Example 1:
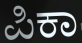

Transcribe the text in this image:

ಪಿಕಾ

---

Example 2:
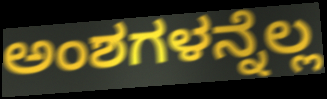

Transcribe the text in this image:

ಅಂಶಗಳನ್ನೆಲ್ಲ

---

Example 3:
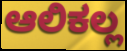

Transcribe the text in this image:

ಆಲಿಕಲ್ಲ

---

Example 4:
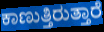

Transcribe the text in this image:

ಕಾಣುತ್ತಿರುತ್ತಾರೆ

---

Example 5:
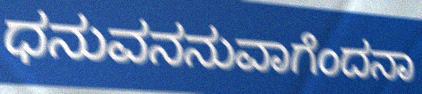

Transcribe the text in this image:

ಧನುವನನುವಾಗೆಂದನಾ